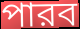
পারব